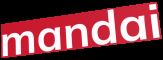
mandai